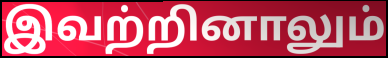
இவற்றினாலும்